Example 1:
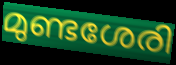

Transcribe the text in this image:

മുണ്ടശേരി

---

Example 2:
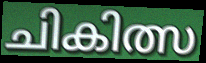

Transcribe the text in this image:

ചികിത്സ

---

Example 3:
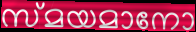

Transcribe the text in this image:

സ്മയമാനോ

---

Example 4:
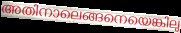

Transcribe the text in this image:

അതിനാലെങ്ങനെയെങ്കിലു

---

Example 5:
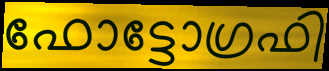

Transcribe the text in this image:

ഫോട്ടോഗ്രഫി